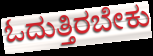
ಓದುತ್ತಿರಬೇಕು